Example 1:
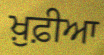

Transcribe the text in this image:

ਖ਼ੁਫ਼ੀਆ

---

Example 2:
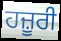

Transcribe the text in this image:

ਹਜ਼ੂਰੀ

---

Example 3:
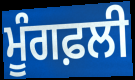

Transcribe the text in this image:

ਮੂੰਗਫ਼ਲੀ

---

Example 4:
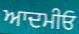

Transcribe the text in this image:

ਆਦਮੀਓ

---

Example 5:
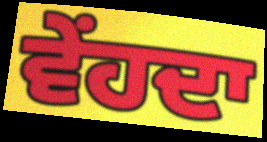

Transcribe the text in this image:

ਵੇਂਹਦਾ